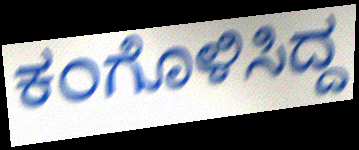
ಕಂಗೊಳಿಸಿದ್ದ